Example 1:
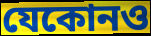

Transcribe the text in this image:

যেকোনও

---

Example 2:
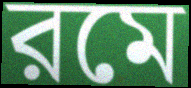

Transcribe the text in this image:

রমে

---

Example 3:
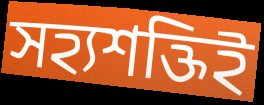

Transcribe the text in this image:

সহ্যশক্তিই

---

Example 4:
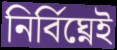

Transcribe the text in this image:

নির্বিঘ্নেই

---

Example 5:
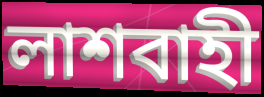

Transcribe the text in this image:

লাশবাহী